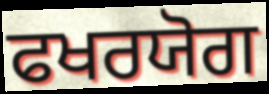
ਫਖਰਯੋਗ